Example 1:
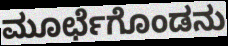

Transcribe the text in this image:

ಮೂರ್ಛೆಗೊಂಡನು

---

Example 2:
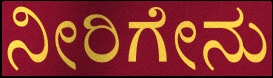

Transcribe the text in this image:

ನೀರಿಗೇನು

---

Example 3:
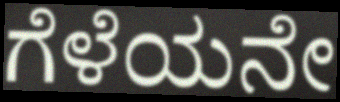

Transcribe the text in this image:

ಗೆಳೆಯನೇ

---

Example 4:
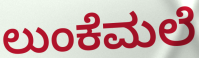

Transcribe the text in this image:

ಲುಂಕೆಮಲೆ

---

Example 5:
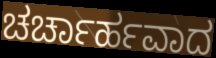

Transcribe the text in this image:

ಚರ್ಚಾರ್ಹವಾದ